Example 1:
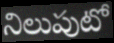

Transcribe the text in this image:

నిలుపుటో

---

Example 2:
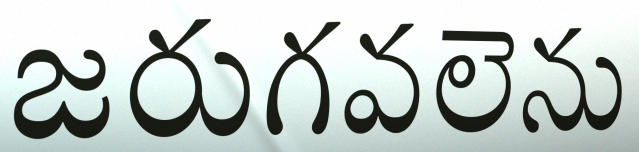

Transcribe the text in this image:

జరుగవలెను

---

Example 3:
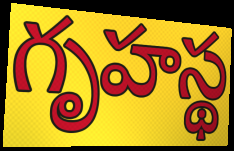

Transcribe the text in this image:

గృహస్థ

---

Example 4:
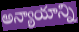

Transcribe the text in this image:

అన్యాయాన్ని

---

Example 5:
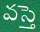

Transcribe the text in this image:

వస్తె